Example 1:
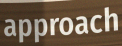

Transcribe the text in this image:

approach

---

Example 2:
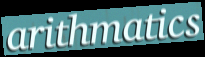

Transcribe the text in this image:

arithmatics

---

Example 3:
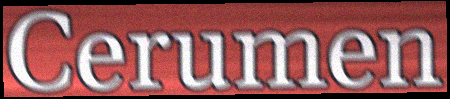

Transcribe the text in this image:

Cerumen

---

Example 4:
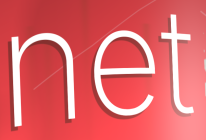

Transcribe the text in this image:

net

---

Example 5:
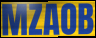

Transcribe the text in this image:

MZAOB